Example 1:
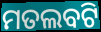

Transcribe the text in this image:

ମତଲବଟି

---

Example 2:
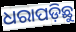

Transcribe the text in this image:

ଧରାପଡ଼ିଛୁ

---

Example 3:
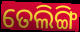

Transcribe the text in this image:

ତେଲିଙ୍ଗି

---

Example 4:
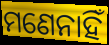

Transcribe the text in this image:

ମଣେନାହିଁ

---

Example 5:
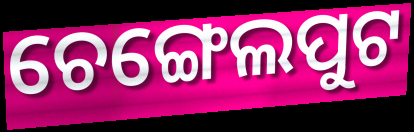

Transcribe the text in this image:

ଚେଙ୍ଗେଲପୁଟ